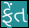
ફેંત